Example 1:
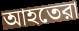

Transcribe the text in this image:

আহতেরা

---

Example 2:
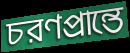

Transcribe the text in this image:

চরণপ্রান্তে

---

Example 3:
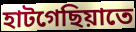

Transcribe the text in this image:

হাটগেছিয়াতে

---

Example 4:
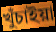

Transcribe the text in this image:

খুঁচাইয়া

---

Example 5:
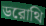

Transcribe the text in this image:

ডরোথি